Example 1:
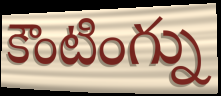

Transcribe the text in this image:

కౌంటింగ్ను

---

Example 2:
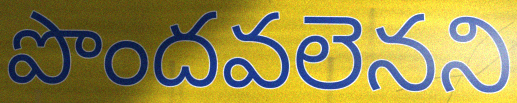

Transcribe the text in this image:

పొందవలెనని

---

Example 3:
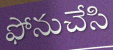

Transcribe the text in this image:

ఫోనుచేసి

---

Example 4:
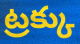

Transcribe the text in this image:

ట్రక్కు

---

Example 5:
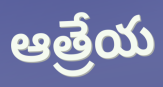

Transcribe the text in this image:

ఆత్రేయ